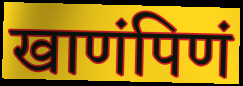
खाणंपिणं